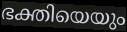
ഭക്തിയെയും